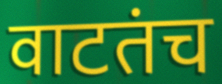
वाटतंच